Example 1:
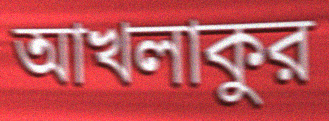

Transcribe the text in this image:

আখলাকুর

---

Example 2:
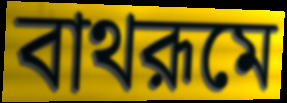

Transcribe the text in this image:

বাথরূমে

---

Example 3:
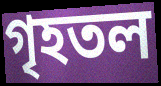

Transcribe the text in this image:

গৃহতল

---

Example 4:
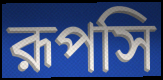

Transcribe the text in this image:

রূপসি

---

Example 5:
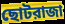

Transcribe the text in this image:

ছোটরাজা